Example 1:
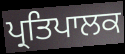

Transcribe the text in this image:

ਪ੍ਰਤਿਪਾਲਕ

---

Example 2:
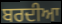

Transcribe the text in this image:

ਬਰਦੀਆ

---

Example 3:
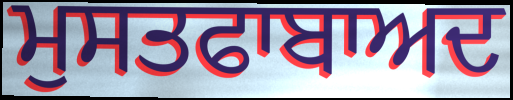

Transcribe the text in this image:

ਮੁਸਤਫਾਬਾਅਦ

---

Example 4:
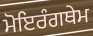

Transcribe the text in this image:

ਮੋਇਰੰਗਥੇਮ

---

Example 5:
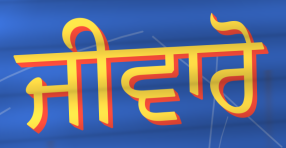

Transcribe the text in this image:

ਜੀਵਾਰੋ